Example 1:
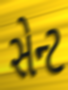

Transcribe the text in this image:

સેન્ટ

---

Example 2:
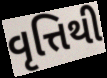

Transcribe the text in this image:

વૃત્તિથી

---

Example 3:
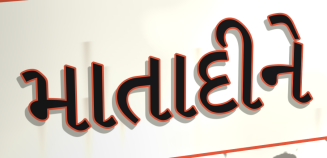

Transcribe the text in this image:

માતાદીને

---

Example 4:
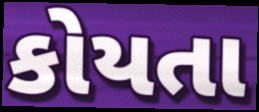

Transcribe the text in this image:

કોયતા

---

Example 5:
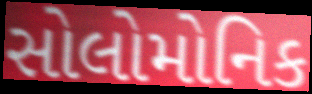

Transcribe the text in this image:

સોલોમોનિક